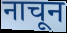
नाचून